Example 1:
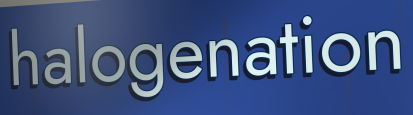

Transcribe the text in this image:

halogenation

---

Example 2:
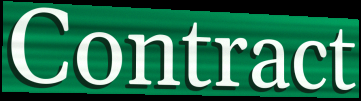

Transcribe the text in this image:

Contract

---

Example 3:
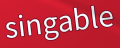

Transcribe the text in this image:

singable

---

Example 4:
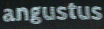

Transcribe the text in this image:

angustus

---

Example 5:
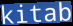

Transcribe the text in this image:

kitab